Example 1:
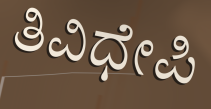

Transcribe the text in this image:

ತಿವಿಧೇಪಿ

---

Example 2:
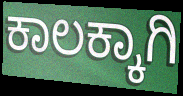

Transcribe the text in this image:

ಕಾಲಕ್ಕಾಗಿ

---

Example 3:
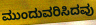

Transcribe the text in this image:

ಮುಂದುವರಿಸಿದವು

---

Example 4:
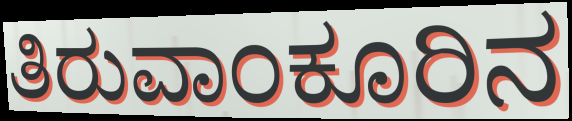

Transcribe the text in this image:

ತಿರುವಾಂಕೂರಿನ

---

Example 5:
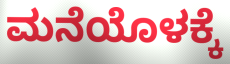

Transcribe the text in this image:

ಮನೆಯೊಳಕ್ಕೆ